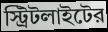
স্ট্রিটলাইটের